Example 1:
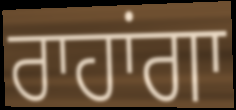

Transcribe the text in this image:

ਰਾਹਾਂਗਾ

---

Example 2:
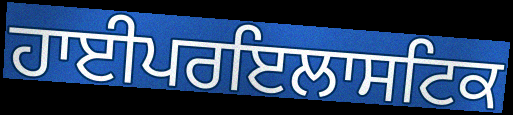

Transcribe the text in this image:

ਹਾਈਪਰਇਲਾਸਟਿਕ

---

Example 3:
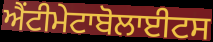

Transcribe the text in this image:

ਐਂਟੀਮੇਟਾਬੋਲਾਈਟਸ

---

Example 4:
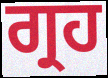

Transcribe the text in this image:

ਗ੍ਰਹ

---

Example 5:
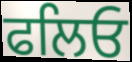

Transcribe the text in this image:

ਫਲਿਓ